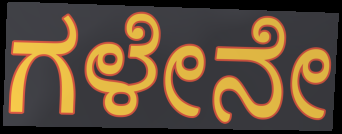
ಗಳೇನೇ